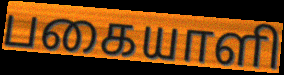
பகையாளி